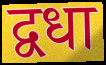
द्वधा